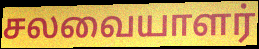
சலவையாளர்